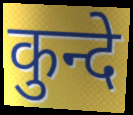
कुन्दे